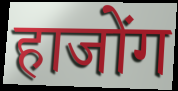
हाजोंग